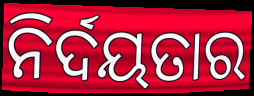
ନିର୍ଦୟତାର